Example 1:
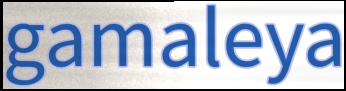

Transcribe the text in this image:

gamaleya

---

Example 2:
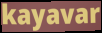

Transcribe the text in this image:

kayavar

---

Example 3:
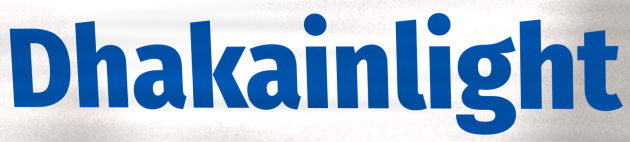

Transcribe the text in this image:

Dhakainlight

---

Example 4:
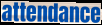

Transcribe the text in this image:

attendance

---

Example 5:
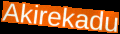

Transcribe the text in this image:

Akirekadu